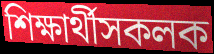
শিক্ষাৰ্থীসকলক